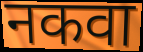
नकवा